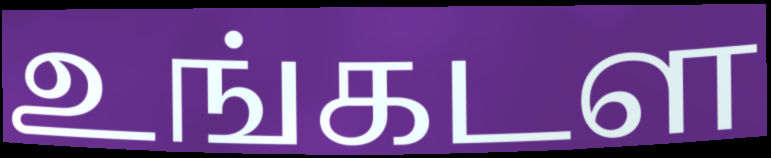
உங்கடள